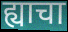
ह्याचा